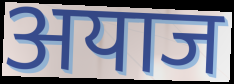
अयाज